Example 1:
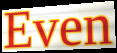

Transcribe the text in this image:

Even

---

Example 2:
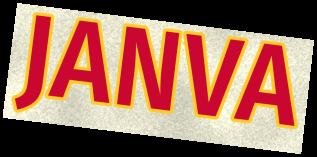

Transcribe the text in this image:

JANVA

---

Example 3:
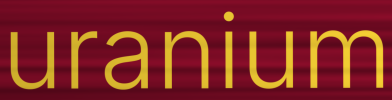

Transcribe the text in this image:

uranium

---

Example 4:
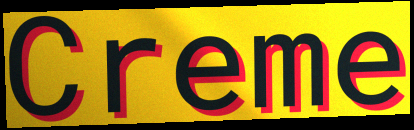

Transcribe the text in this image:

Creme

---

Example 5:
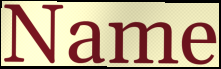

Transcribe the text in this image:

Name